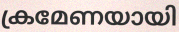
ക്രമേണയായി